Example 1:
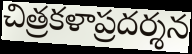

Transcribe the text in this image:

చిత్రకళాప్రదర్శన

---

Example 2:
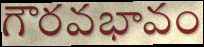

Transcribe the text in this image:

గౌరవభావం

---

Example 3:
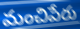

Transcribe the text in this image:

మంచిపేరు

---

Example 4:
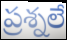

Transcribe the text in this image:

ప్రశ్నలే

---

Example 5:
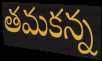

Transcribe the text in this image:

తమకన్న